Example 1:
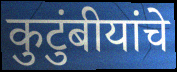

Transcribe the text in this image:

कुटुंबीयांचे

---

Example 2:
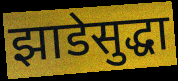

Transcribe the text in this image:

झाडेसुद्धा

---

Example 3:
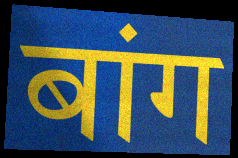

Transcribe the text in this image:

बांग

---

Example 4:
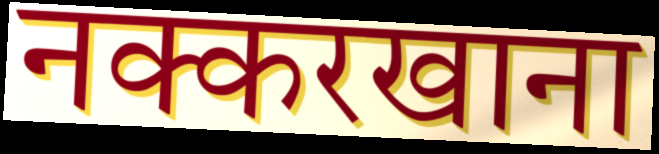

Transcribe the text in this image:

नक्करखाना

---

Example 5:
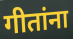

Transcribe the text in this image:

गीतांना